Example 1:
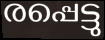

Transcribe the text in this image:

രപ്പെട്ടു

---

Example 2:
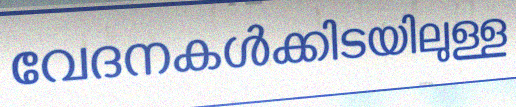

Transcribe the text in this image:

വേദനകൾക്കിടയിലുള്ള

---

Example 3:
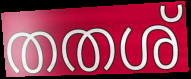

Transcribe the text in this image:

തതശ്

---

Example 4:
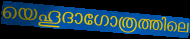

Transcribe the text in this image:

യെഹൂദാഗോത്രത്തിലെ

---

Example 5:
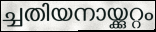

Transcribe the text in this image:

ച്ചതിയനായ്ക്കുറ്റം